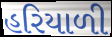
હરિયાળી